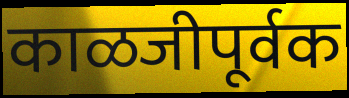
काळजीपूर्वक